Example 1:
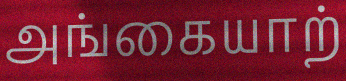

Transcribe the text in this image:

அங்கையாற்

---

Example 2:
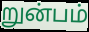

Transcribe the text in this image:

றுன்பம்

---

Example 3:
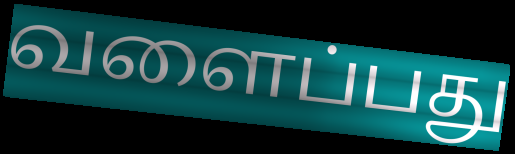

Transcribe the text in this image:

வளைப்பது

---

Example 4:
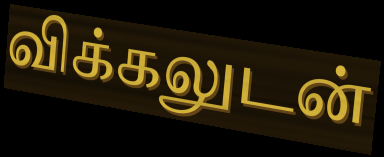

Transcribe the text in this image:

விக்கலுடன்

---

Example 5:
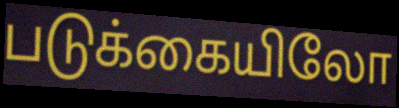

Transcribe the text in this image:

படுக்கையிலோ